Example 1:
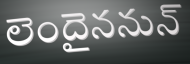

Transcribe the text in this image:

లెందైననున్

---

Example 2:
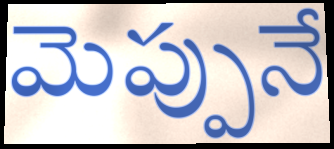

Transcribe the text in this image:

మెప్పునే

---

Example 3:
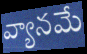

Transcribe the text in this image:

వ్యానమే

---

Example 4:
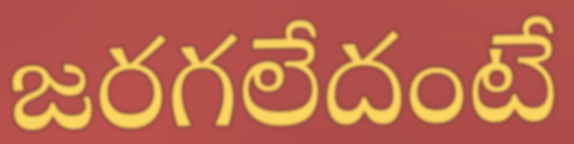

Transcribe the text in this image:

జరగలేదంటే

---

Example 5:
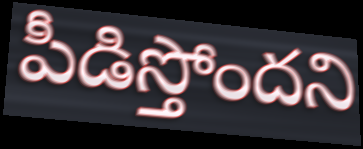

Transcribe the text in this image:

పీడిస్తోందని